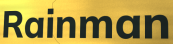
Rainman